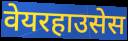
वेयरहाउसेस